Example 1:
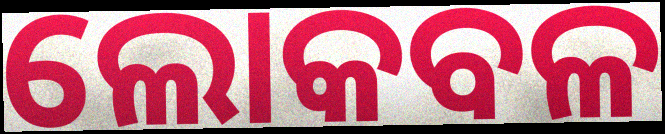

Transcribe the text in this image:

ଲୋକବଳ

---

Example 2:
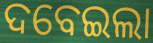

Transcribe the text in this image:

ଦବେଇଲା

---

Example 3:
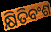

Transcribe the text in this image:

କ୍ଷିତିବଂଶ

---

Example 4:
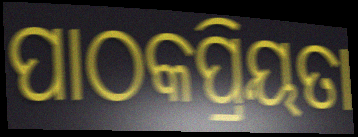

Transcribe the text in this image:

ପାଠକପ୍ରିୟତା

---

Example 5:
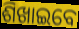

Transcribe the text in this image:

ଶିଖାଇବେ